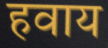
हवाय